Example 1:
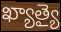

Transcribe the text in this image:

ఖ్యాత్యై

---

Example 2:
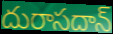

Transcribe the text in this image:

దురాసదాన్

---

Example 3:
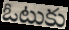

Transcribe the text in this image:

ఓటుకు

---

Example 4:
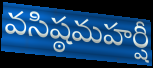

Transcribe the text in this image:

వసిష్ఠమహర్షీ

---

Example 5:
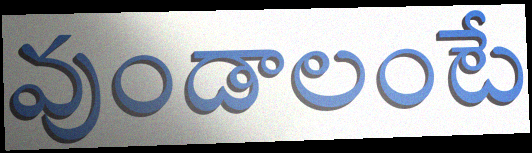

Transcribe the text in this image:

వుండాలంటే